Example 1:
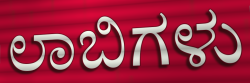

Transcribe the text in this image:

ಲಾಬಿಗಳು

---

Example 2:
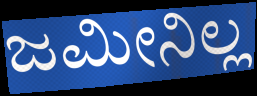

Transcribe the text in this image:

ಜಮೀನಿಲ್ಲ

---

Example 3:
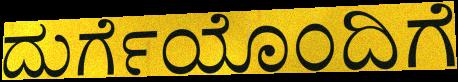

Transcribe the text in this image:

ದುರ್ಗೆಯೊಂದಿಗೆ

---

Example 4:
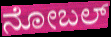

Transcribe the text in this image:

ನೋಬಲ್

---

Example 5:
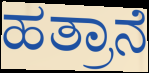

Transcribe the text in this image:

ಹತ್ರಾನೆ